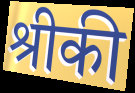
श्रीकी